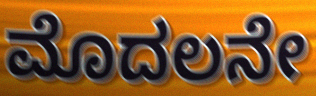
ಮೊದಲನೇ